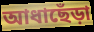
আধাছেঁড়া